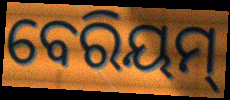
ବେରିୟମ୍